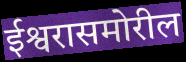
ईश्वरासमोरील